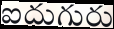
ఐదుగురు